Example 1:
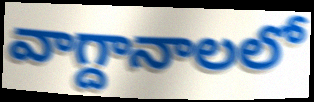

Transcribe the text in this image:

వాగ్దానాలలో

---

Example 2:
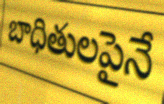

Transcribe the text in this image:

బాధితులపైనే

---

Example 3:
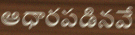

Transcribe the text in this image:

ఆధారపడినవే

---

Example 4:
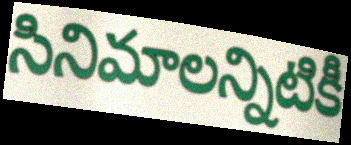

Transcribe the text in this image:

సినిమాలన్నిటికీ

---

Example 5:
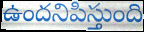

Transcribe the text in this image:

ఉందనిపిస్తుంది